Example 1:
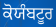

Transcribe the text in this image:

ਕੋਯੰਬਟੂਰ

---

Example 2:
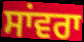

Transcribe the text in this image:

ਸਾਂਵਰਾ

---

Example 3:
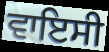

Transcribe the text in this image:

ਵਾਇਸੀ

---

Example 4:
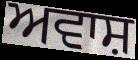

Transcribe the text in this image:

ਅਵਾਸ਼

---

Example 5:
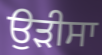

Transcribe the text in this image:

ਉੜੀਸਾ